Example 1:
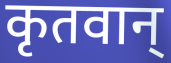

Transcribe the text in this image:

कृतवान्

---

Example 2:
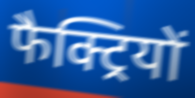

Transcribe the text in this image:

फैक्ट्रियों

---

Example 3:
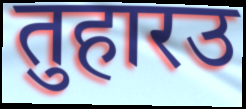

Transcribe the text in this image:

तुहारउ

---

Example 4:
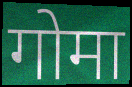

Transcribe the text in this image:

गोमा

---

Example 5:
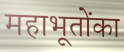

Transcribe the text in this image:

महाभूतोंका